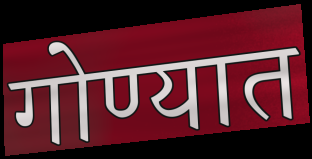
गोण्यात